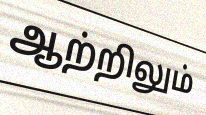
ஆற்றிலும்